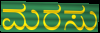
ಮರಸು